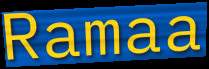
Ramaa